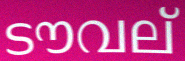
ടൗവല്